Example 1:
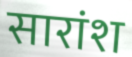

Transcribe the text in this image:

सारांश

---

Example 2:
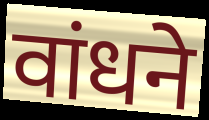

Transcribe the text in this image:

वांधने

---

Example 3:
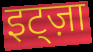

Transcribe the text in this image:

इट्ज़ा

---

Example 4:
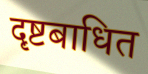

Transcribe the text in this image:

दृष्टबाधित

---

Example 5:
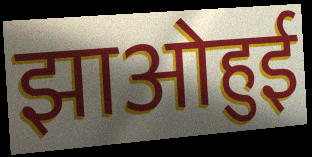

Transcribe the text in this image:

झाओहुई